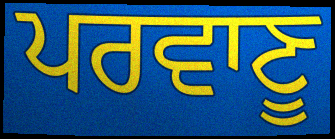
ਪਰਵਾਣੂ